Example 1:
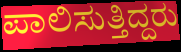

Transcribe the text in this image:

ಪಾಲಿಸುತ್ತಿದ್ದರು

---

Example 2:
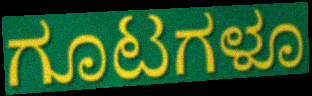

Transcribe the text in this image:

ಗೂಟಗಳೂ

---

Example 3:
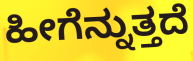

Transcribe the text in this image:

ಹೀಗೆನ್ನುತ್ತದೆ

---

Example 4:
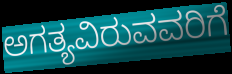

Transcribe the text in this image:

ಅಗತ್ಯವಿರುವವರಿಗೆ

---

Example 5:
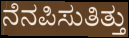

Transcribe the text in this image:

ನೆನಪಿಸುತಿತ್ತು